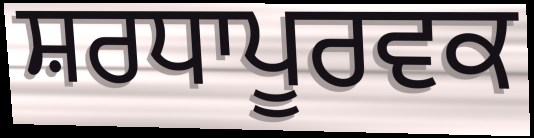
ਸ਼ਰਧਾਪੂਰਵਕ